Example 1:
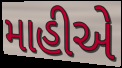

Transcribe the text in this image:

માહીએ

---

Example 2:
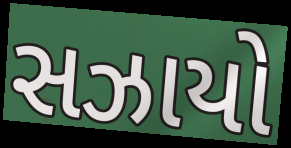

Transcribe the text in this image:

સઝાયો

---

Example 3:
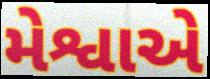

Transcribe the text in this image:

મેશ્વાએ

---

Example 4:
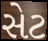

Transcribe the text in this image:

સેટ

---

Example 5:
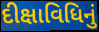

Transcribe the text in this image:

દીક્ષાવિધિનું